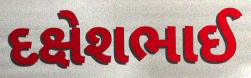
દક્ષેશભાઈ